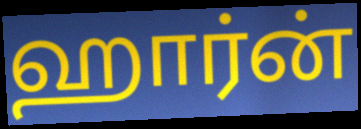
ஹார்ன்